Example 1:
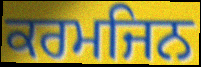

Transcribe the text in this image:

ਕਰਮਜਿਨ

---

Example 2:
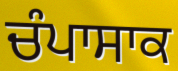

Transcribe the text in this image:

ਚੰਪਾਸਾਕ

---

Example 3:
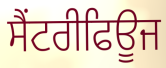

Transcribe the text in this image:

ਸੈਂਟਰੀਫਿਊਜ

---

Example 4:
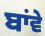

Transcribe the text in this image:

ਬਾਂਵੇ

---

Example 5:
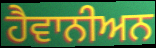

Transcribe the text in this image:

ਹੈਵਾਨੀਅਨ